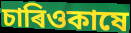
চাৰিওকাষে